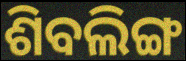
ଶିବଲିଙ୍ଗ